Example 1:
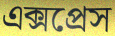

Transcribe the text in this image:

এক্সপ্রেস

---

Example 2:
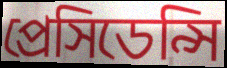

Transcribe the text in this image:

প্রেসিডেন্সি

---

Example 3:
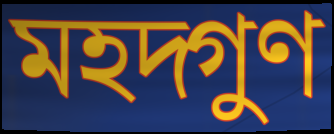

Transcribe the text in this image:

মহদ্গুণ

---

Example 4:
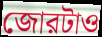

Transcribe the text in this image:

জোরটাও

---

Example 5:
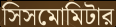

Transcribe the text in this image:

সিসমোমিটার